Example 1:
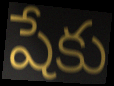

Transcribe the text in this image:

షేకు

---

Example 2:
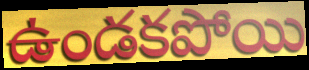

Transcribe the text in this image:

ఉండకపోయి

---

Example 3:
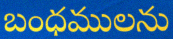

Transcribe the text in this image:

బంధములను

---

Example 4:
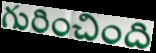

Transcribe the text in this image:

గురించింది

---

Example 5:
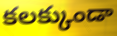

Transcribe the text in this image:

కలక్కుండా